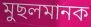
মুছলমানক